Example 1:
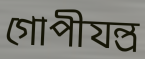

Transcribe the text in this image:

গোপীযন্ত্র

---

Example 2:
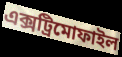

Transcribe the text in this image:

এক্সট্রিমোফাইল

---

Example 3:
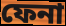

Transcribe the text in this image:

ফেনা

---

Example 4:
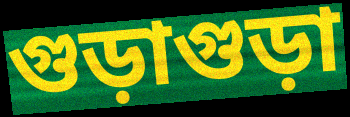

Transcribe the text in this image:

গুড়াগুড়া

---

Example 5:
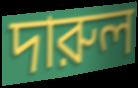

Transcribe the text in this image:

দারুল